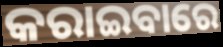
କରାଇବାରେ